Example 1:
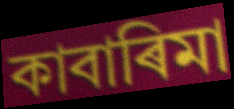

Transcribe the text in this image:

কাবাৰিমা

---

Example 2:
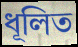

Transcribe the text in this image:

ধূলিত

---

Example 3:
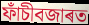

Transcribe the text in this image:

ফাঁচীবজাৰত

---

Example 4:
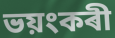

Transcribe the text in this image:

ভয়ংকৰী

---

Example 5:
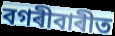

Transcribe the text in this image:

বগৰীবাৰীত